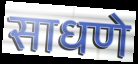
साधणे